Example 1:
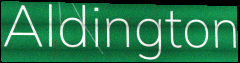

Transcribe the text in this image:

Aldington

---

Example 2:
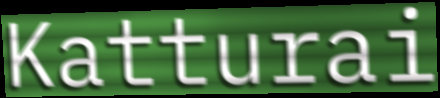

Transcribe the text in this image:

Katturai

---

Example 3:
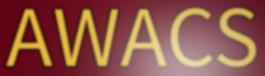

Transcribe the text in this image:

AWACS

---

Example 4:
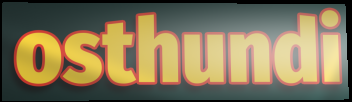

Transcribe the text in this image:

osthundi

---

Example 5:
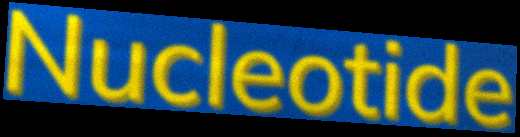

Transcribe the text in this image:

Nucleotide